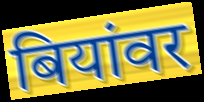
बियांवर